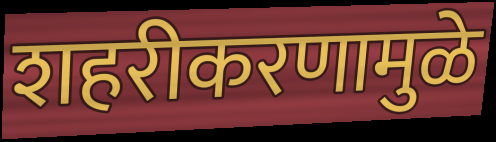
शहरीकरणामुळे